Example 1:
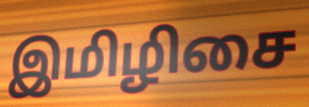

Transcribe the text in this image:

இமிழிசை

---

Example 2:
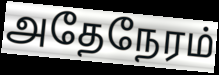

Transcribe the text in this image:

அதேநேரம்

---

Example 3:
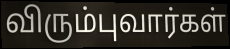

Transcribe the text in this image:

விரும்புவார்கள்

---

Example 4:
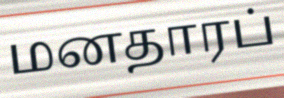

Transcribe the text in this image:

மனதாரப்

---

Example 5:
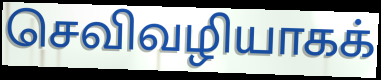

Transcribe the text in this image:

செவிவழியாகக்